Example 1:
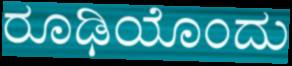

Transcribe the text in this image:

ರೂಢಿಯೊಂದು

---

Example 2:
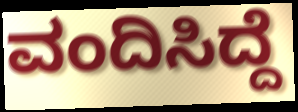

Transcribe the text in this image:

ವಂದಿಸಿದ್ದೆ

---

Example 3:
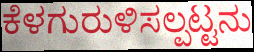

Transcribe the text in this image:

ಕೆಳಗುರುಳಿಸಲ್ಪಟ್ಟನು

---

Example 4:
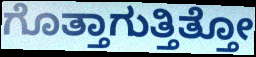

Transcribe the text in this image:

ಗೊತ್ತಾಗುತ್ತಿತ್ತೋ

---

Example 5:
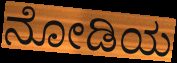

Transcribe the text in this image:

ನೋಡಿಯ